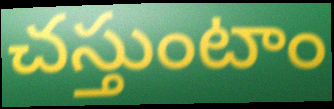
చస్తుంటాం